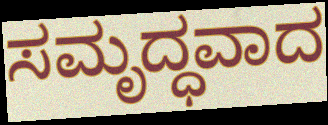
ಸಮೃದ್ಧವಾದ